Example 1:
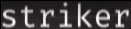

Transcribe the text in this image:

striker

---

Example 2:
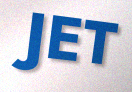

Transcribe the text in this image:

JET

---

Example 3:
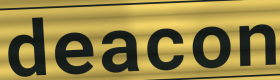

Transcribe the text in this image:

deacon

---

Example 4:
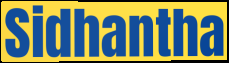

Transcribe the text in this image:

Sidhantha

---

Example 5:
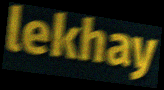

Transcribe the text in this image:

lekhay